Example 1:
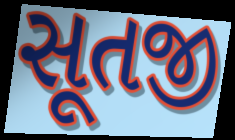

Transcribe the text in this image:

સૂતજી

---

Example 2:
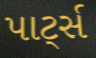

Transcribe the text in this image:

પાર્ટ્સ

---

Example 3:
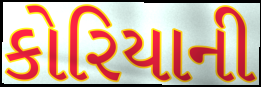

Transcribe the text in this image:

કોરિયાની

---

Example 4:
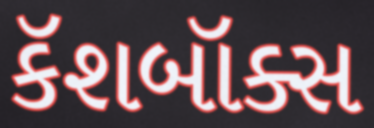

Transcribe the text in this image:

કૅશબૉક્સ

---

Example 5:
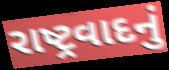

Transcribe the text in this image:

રાષ્ટ્રવાદનું